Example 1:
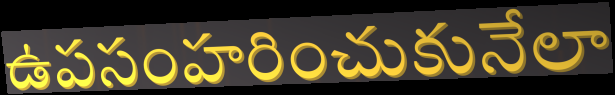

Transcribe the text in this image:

ఉపసంహరించుకునేలా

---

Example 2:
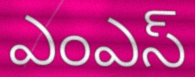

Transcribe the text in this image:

ఎంఎస్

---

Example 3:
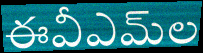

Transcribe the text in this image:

ఈవీఎమ్‌ల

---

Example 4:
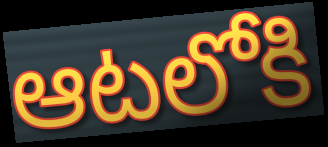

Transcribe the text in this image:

ఆటలోకి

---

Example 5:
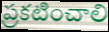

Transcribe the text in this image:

ప్రకటించాలి